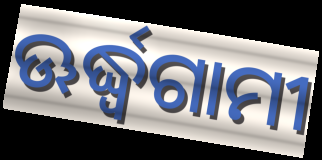
ଊର୍ଦ୍ଧ୍ୱଗାମୀ